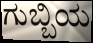
ಗುಬ್ಬಿಯ